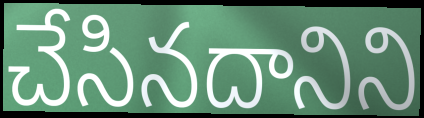
చేసినదానిని